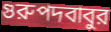
গুরুপদবাবুর